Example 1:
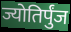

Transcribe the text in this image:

ज्योतिर्पुंज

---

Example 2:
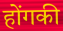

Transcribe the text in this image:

होंगकी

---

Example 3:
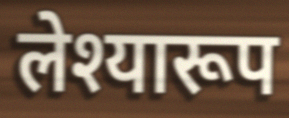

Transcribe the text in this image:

लेश्यारूप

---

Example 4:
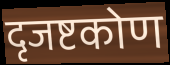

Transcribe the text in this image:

दृजष्टकोण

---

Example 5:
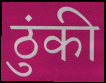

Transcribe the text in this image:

ठुंकी